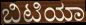
ಬಿಟಿಯಾ